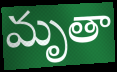
మృతా